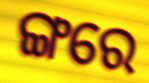
ଙ୍ଗରେ